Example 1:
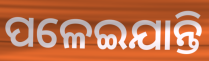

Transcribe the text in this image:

ପଳେଇଯାନ୍ତି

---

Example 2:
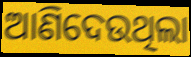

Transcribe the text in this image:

ଆଣିଦେଉଥିଲା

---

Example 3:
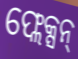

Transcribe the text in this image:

ଫ୍ଲେକ୍ସନ୍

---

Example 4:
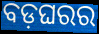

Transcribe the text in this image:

ବଡ଼ଘରର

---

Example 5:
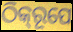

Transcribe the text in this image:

ଠିକ୍‍ରୂପେ